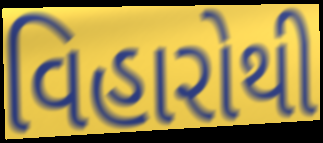
વિહારોથી